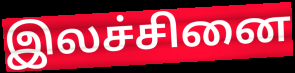
இலச்சினை